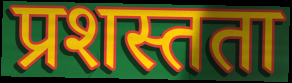
प्रशस्तता